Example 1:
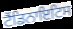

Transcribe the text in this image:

ਟੈਂਡਿਨਾਇਟਿਸ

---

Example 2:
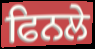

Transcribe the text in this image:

ਫਿਨਲੇ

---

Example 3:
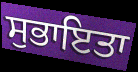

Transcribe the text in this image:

ਸੁਭਾਇਤਾ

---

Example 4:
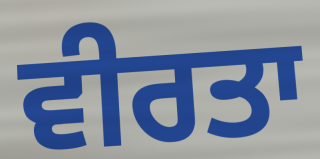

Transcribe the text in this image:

ਵੀਰਤਾ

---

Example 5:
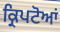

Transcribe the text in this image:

ਕ੍ਰਿਪਟੋਆਂ